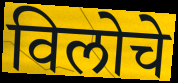
विलोचे